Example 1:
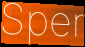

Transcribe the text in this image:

Sper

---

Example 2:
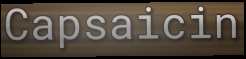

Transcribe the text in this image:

Capsaicin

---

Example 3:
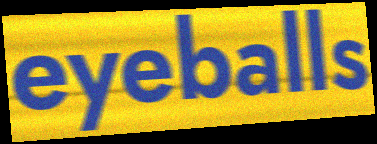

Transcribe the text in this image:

eyeballs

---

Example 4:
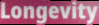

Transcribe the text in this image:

Longevity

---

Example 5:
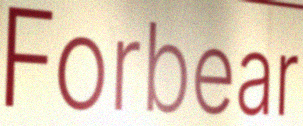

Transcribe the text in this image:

Forbear